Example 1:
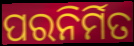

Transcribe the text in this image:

ପରନିର୍ମିତ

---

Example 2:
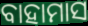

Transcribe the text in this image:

ବାହାମାସ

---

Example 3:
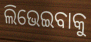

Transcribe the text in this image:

ଲିଭେଇବାକୁ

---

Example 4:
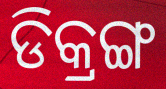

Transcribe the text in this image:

ଡିକ୍ରଙ୍ଗ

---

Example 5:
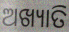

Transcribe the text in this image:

ଅଖ୍ୟାତି